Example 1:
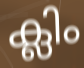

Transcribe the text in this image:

ക്ലിം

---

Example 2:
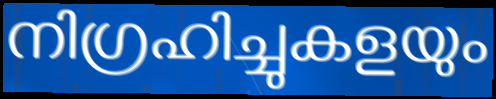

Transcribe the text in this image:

നിഗ്രഹിച്ചുകളയും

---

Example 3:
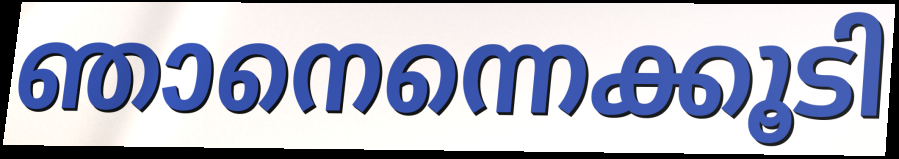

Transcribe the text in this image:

ഞാനെന്നെക്കൂടി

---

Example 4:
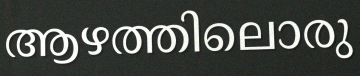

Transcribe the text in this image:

ആഴത്തിലൊരു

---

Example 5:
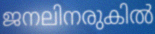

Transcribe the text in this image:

ജനലിനരുകിൽ